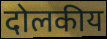
दोलकीय